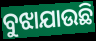
ବୁଝାଯାଉଛି